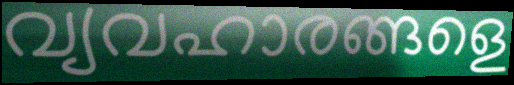
വ്യവഹാരങ്ങളെ